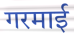
गरमाई